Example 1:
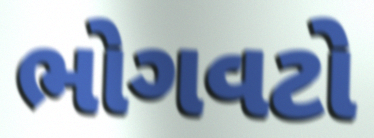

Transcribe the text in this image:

ભોગવટો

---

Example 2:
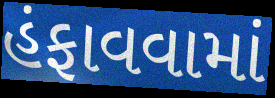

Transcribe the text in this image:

હંફાવવામાં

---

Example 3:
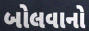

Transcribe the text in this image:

બોલવાનો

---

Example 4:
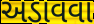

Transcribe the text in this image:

અડાવવા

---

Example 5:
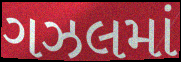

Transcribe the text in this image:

ગઝલમાં